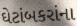
ઘેટાંબકરાંના